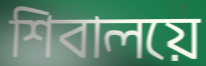
শিবালয়ে